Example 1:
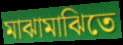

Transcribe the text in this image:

মাঝামাঝিতে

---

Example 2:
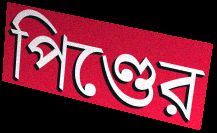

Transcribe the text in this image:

পিণ্ডের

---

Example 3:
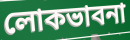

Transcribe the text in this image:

লোকভাবনা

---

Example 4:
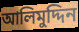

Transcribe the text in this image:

আলিমুদ্দিন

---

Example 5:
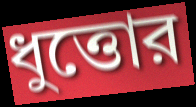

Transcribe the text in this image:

ধুত্তোর